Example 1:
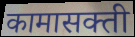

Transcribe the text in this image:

कामासक्ती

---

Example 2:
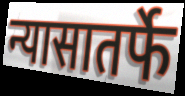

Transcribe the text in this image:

न्यासातर्फे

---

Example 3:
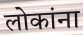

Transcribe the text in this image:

लोकांना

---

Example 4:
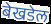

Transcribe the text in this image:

बेखडेल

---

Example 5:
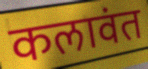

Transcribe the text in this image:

कलावंत